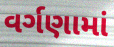
વર્ગણામાં